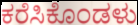
ಕರೆಸಿಕೊಂಡಳು